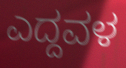
ಎದ್ದವಳ